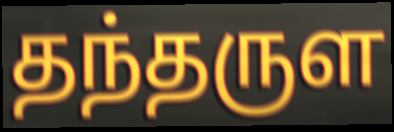
தந்தருள